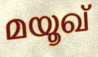
മയൂഖ്